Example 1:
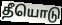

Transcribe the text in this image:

தீயொடு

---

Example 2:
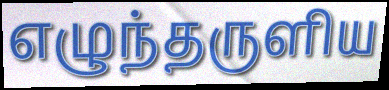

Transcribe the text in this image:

எழுந்தருளிய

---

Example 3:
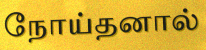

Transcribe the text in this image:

நோய்தனால்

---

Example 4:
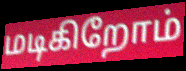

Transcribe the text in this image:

மடிகிறோம்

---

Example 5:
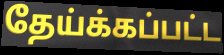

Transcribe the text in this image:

தேய்க்கப்பட்ட